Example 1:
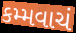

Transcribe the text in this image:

કમ્મવાચં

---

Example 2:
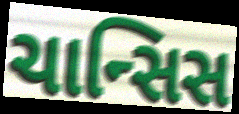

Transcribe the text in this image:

ચાન્સિસ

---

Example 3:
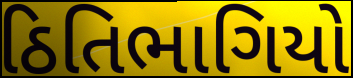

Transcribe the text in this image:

ઠિતિભાગિયો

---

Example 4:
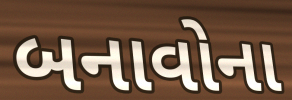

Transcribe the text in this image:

બનાવોના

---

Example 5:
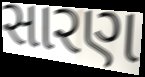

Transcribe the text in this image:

સારણ